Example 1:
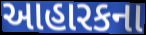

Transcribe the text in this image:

આહારકના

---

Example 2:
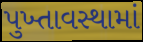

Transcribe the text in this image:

પુખ્તાવસ્થામાં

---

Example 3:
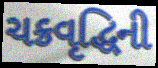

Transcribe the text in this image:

ચક્રવૃદ્ધિની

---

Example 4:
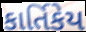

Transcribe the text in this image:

કાર્તિકેય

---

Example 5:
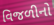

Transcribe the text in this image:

વિજળીનો